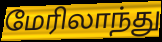
மேரிலாந்து